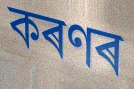
কৰণৰ